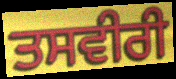
ਤਸਵੀਰੀ